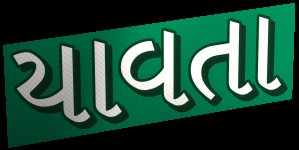
યાવતા